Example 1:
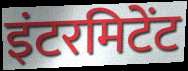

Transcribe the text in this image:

इंटरमिटेंट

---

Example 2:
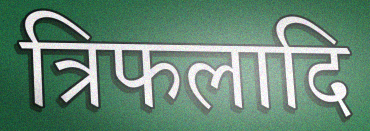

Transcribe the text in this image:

त्रिफलादि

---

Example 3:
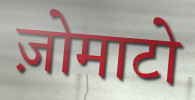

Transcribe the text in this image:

ज़ोमाटो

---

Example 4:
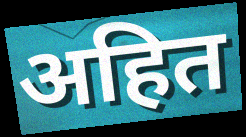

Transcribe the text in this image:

अहित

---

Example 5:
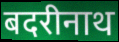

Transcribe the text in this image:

बदरीनाथ